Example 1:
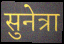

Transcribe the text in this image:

सुनेत्रा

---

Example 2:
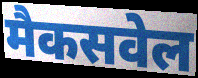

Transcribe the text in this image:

मैकसवेल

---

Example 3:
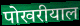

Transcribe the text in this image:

पोखरीयाल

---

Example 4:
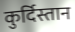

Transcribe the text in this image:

कुर्दिस्तान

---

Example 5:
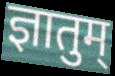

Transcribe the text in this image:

ज्ञातुम्